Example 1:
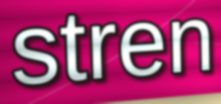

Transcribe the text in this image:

stren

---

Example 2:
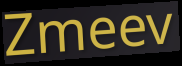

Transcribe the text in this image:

Zmeev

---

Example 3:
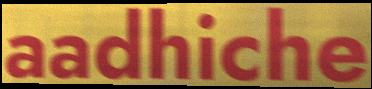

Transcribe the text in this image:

aadhiche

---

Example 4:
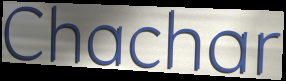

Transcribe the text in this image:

Chachar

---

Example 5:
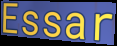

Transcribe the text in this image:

Essar